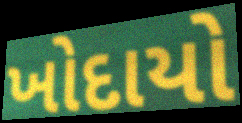
ખોદાયો